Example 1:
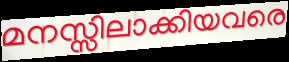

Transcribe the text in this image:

മനസ്സിലാക്കിയവരെ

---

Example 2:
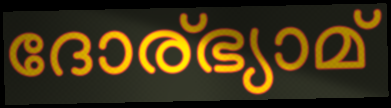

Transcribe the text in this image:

ദോര്ഭ്യാമ്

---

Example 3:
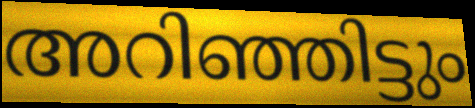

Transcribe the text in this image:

അറിഞ്ഞിട്ടും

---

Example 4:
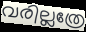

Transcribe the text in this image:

വരില്ലത്രേ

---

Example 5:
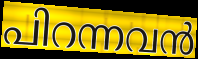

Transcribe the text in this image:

പിറന്നവൻ